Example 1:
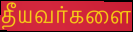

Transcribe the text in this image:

தீயவர்களை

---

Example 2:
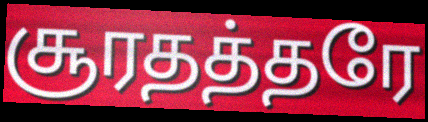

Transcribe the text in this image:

சூரதத்தரே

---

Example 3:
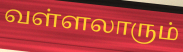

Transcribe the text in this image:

வள்ளலாரும்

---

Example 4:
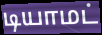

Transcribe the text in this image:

டியாமட்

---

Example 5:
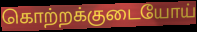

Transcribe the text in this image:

கொற்றக்குடையோய்